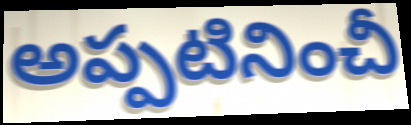
అప్పటినించీ